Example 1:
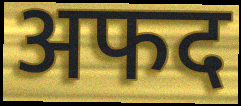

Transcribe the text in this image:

अफद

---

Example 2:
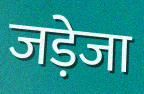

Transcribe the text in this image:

जड़ेजा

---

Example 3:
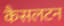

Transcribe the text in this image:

कैसलटन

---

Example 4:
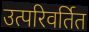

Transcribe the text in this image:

उत्परिवर्तित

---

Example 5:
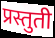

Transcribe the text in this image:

प्रस्तुती